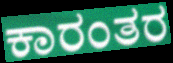
ಕಾರಂತರ